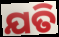
ଯତି